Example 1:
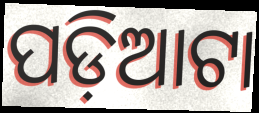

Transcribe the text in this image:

ପଡ଼ିଆଟା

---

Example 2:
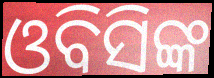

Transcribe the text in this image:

ଓବିସିଙ୍କ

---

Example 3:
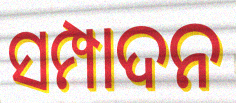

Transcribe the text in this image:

ସମ୍ପାଦନ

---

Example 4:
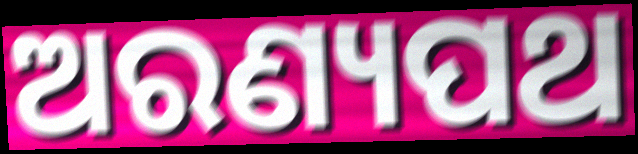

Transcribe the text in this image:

ଅରଣ୍ୟପଥ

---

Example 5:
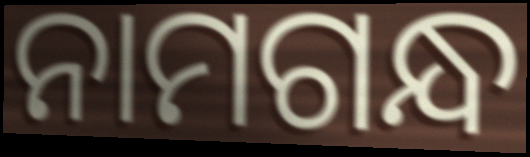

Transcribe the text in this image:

ନାମଗନ୍ଧ